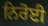
ਨਿਰੋਈ